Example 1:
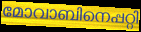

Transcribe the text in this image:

മോവാബിനെപ്പറ്റി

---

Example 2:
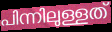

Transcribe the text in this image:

പിന്നിലുള്ളത്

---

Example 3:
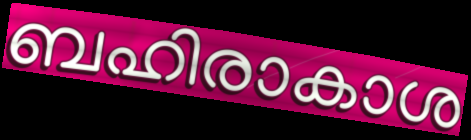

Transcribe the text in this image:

ബഹിരാകാശ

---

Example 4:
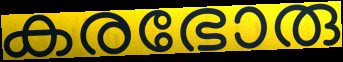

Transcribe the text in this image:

കരഭോരു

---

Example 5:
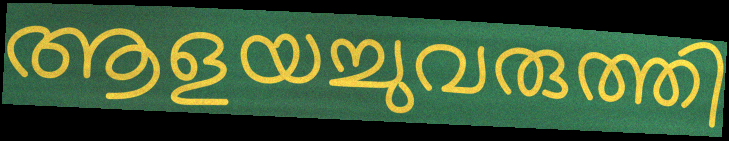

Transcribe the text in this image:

ആളയച്ചുവരുത്തി